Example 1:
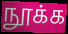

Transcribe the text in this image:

நூக்க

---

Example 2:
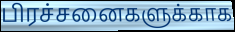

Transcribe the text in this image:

பிரச்சனைகளுக்காக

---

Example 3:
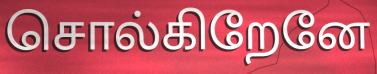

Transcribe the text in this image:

சொல்கிறேனே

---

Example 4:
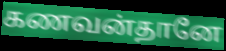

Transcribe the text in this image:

கணவன்தானே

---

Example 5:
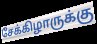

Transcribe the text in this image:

சேக்கிழாருக்கு